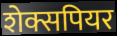
शेक्सपियर